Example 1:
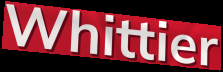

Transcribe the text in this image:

Whittier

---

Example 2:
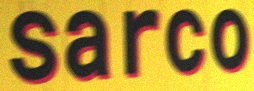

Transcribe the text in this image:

sarco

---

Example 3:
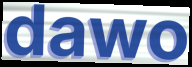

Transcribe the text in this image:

dawo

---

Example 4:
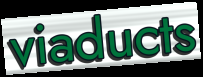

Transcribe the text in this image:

viaducts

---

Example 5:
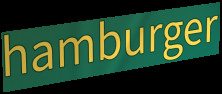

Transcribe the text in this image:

hamburger